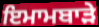
ਇਮਾਮਬਾੜੇ